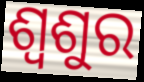
ଶ୍ଵଶୁର